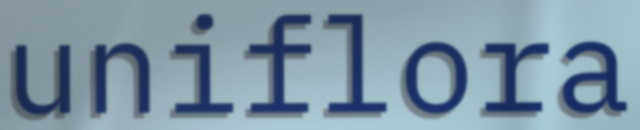
uniflora